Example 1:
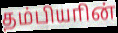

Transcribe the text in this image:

தம்பியரின்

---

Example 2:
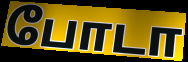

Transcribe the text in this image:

போடா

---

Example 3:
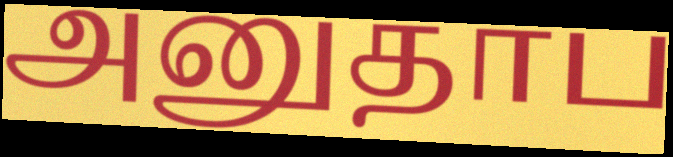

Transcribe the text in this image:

அனுதாப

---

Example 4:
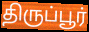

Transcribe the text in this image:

திருப்பூர்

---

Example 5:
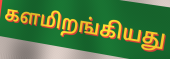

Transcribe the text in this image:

களமிறங்கியது